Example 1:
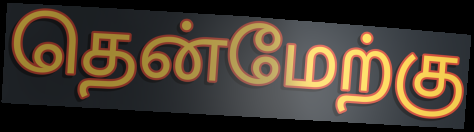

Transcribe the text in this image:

தென்மேற்கு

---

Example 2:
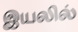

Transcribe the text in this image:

இயலில்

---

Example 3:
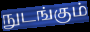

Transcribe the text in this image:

நுடங்கும்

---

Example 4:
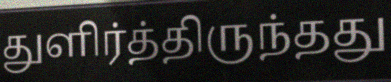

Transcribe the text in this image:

துளிர்த்திருந்தது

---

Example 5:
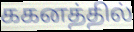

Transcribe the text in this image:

ககனத்தில்